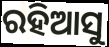
ରହିଆସୁ